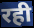
रही